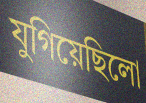
যুগিয়েছিলো